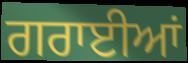
ਗਰਾਈਆਂ